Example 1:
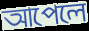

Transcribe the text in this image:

আপেলে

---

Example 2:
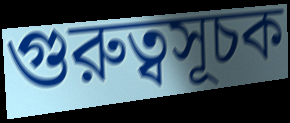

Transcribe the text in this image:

গুরুত্বসূচক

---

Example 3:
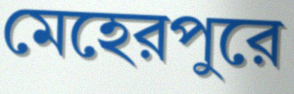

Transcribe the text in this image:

মেহেরপুরে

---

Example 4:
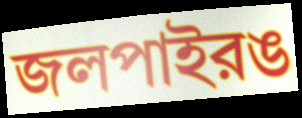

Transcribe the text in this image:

জলপাইরঙ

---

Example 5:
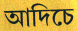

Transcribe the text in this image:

আদিচে